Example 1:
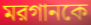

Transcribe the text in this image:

মরগানকে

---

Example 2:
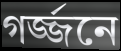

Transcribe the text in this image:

গর্জ্জনে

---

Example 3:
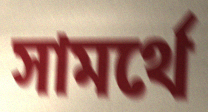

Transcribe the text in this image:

সামর্থে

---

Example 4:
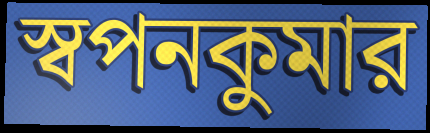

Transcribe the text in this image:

স্বপনকুমার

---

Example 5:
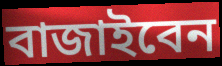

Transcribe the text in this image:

বাজাইবেন